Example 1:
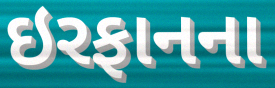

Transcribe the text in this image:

ઇરફાનના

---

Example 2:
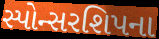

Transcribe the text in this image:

સ્પોન્સરશિપના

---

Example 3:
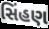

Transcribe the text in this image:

સિંહણ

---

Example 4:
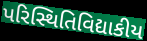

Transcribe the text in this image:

પરિસ્થિતિવિદ્યાકીય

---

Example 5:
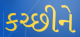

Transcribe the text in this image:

કચ્છીને